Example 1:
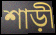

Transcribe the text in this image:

শাড়ী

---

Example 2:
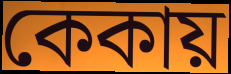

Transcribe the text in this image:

কেকায়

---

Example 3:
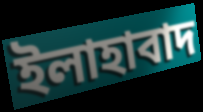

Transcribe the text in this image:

ইলাহাবাদ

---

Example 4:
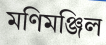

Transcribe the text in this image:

মণিমঞ্জিল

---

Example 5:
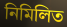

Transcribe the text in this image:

নিমিলিত